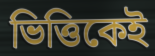
ভিত্তিকেই